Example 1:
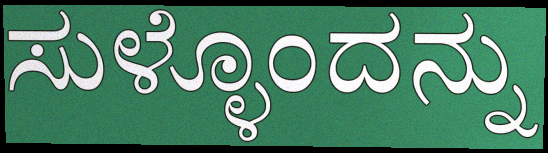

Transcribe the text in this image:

ಸುಳ್ಳೊಂದನ್ನು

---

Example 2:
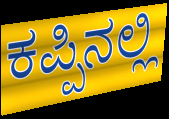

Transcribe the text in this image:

ಕಪ್ಪಿನಲ್ಲಿ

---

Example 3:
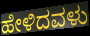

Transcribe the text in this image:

ಹೇಳಿದವಳು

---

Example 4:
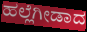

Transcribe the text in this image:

ಹಲ್ಲೆಗೀಡಾದ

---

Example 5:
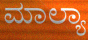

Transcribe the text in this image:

ಮಾಲ್ಯಾ